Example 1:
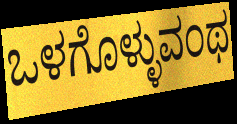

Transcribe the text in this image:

ಒಳಗೊಳ್ಳುವಂಥ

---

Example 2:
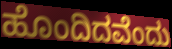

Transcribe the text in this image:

ಹೊಂದಿದವೆಂದು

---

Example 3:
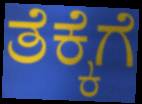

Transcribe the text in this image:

ತೆಕ್ಕೆಗೆ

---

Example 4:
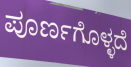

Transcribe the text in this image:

ಪೂರ್ಣಗೊಳ್ಳದೆ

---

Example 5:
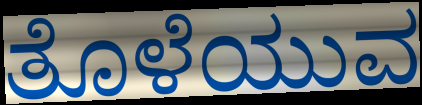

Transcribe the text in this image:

ತೊಳೆಯುವ